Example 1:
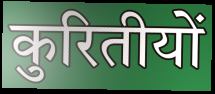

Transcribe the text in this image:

कुरितीयों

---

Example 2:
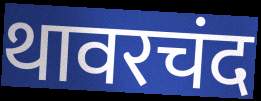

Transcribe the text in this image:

थावरचंद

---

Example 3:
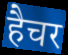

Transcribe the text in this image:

हैचर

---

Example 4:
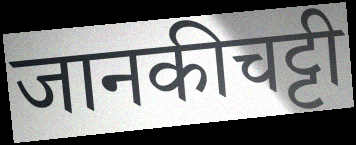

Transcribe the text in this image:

जानकीचट्टी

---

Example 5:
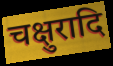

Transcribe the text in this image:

चक्षुरादि